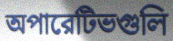
অপারেটিভগুলি